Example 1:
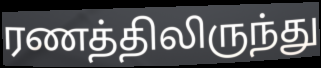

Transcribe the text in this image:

ரணத்திலிருந்து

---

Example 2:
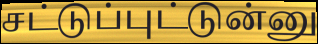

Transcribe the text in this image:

சட்டுப்புட்டுன்னு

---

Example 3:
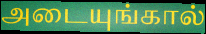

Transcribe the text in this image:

அடையுங்கால்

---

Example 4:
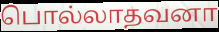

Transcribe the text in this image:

பொல்லாதவனா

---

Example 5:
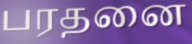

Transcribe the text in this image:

பரதனை